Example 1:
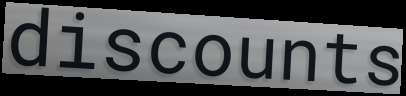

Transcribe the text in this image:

discounts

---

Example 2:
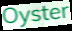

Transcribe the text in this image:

Oyster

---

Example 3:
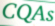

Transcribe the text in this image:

CQAs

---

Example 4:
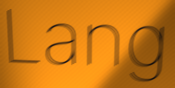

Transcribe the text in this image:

Lang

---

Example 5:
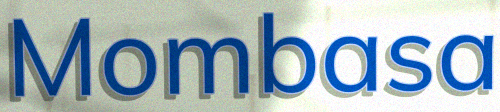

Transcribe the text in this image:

Mombasa